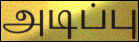
அடிப்பு